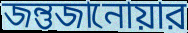
জন্তুজানোয়ার